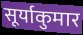
सूर्याकुमार